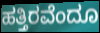
ಹತ್ತಿರವೆಂದೂ